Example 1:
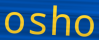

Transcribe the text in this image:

osho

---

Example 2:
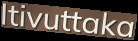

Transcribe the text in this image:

Itivuttaka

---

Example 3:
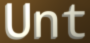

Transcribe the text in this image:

Unt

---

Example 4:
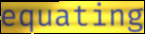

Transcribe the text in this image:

equating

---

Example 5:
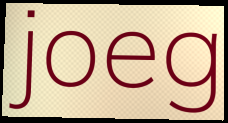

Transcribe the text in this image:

joeg